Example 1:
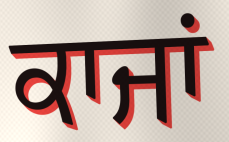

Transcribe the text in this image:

ਕਾਜਾਂ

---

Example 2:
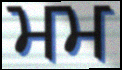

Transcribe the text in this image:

ਮਮ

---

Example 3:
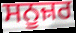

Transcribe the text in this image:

ਸਨੂਜ਼ਰ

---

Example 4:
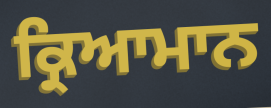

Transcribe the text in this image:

ਕ੍ਰਿਆਮਾਨ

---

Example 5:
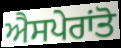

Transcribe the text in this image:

ਐਸਪੇਰਾਂਤੋ